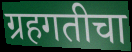
ग्रहगतीचा